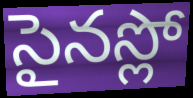
సైనస్లో